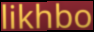
likhbo